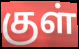
குள்